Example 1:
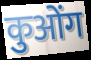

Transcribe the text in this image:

कुओंग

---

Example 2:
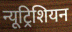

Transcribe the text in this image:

न्यूट्रिशियन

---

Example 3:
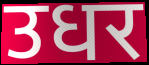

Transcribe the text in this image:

उधर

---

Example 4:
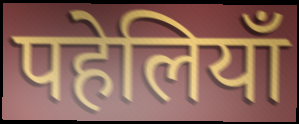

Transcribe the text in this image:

पहेलियाँ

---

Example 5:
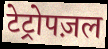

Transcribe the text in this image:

टेट्रोपज़ल